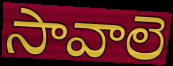
సావాలె